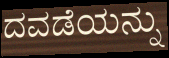
ದವಡೆಯನ್ನು